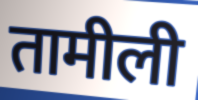
तामीली